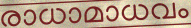
രാധാമാധവം